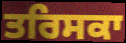
ਤਰਿਸਕਾ